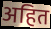
अहित